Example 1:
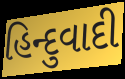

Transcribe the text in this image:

હિન્દુવાદી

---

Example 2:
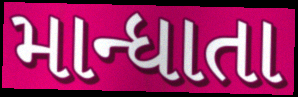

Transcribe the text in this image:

માન્ધાતા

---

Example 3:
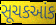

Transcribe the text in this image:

સૂચકઆંક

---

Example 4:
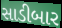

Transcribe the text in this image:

સાડીબાર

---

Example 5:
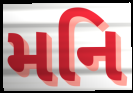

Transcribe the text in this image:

મનિ